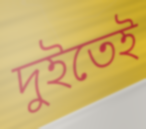
দুইতেই